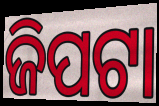
ଜିପଟା